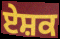
ਏਸ਼ਕ